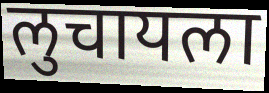
लुचायला